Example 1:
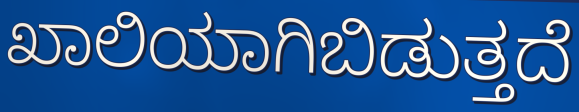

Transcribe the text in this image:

ಖಾಲಿಯಾಗಿಬಿಡುತ್ತದೆ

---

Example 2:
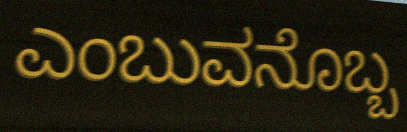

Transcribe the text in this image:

ಎಂಬುವನೊಬ್ಬ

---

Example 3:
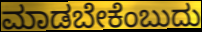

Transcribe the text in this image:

ಮಾಡಬೇಕೆಂಬುದು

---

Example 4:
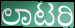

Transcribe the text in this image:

ಲಾಟರಿ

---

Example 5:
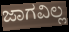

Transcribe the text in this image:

ಜಾಗವಿಲ್ಲ